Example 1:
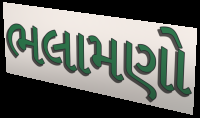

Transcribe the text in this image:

ભલામણો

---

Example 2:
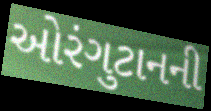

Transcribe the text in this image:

ઓરંગુટાનની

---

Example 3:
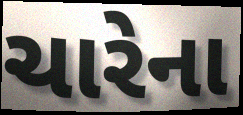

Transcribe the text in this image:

ચારેના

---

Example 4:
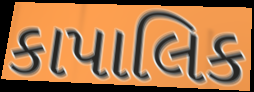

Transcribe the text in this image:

કાપાલિક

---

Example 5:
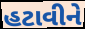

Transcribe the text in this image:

હટાવીને